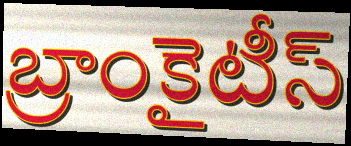
బ్రాంకైటీస్